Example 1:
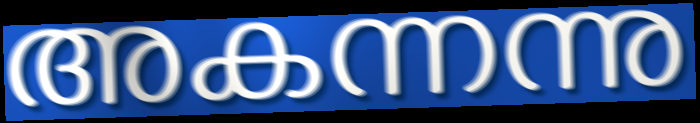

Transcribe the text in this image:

അകന്നന്നു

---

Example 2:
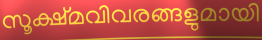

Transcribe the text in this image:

സൂക്ഷ്മവിവരങ്ങളുമായി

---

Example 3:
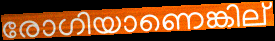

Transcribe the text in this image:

രോഗിയാണെങ്കില്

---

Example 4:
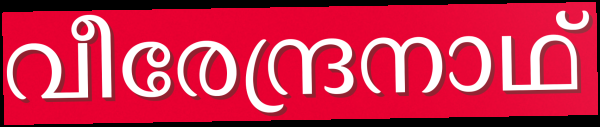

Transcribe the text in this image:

വീരേന്ദ്രനാഥ്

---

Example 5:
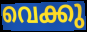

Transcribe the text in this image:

വെക്കു